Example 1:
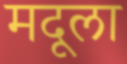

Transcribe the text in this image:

मदूला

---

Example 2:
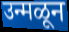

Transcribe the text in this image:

उन्मळून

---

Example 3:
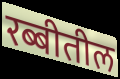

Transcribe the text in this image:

रब्बीतील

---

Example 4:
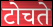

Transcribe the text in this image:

टोचते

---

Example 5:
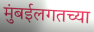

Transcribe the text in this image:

मुंबईलगतच्या